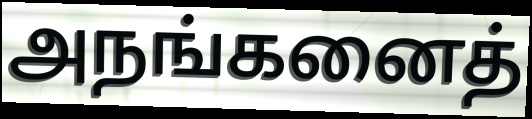
அநங்கனைத்